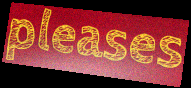
pleases